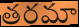
తరమా